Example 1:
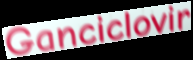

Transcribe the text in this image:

Ganciclovir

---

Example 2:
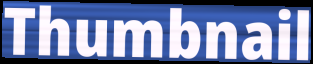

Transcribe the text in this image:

Thumbnail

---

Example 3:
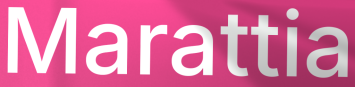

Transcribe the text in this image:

Marattia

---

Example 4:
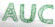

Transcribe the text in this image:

AUC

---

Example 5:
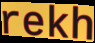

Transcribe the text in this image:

rekh